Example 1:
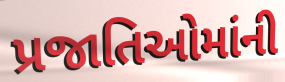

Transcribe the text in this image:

પ્રજાતિઓમાંની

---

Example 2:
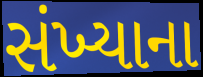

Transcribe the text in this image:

સંખ્યાના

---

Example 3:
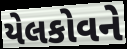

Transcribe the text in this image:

યેલકોવને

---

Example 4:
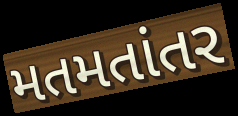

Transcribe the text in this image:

મતમતાંતર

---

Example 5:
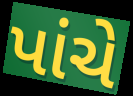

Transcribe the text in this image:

પાંચે